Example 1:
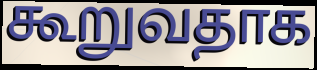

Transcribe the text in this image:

கூறுவதாக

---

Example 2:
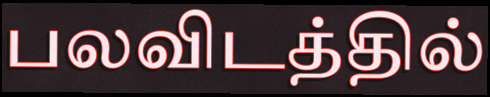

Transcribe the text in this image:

பலவிடத்தில்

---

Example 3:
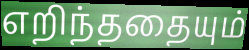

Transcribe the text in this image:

எறிந்ததையும்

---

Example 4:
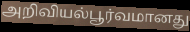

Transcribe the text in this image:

அறிவியல்பூர்வமானது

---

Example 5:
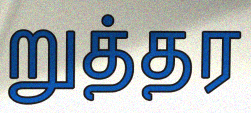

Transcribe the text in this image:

றுத்தர